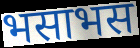
भसाभस